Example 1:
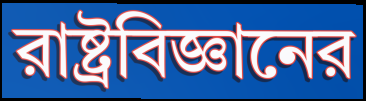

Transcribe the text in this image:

রাষ্ট্রবিজ্ঞানের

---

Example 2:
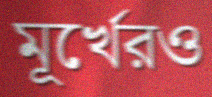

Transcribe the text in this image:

মূর্খেরও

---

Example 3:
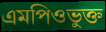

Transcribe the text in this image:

এমপিওভুক্ত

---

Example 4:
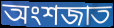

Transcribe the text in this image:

অংশজাত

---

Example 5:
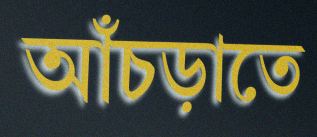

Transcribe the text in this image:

আঁচড়াতে